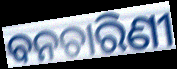
ବନଚାରିଣୀ